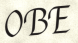
OBE